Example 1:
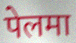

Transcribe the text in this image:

पेलमा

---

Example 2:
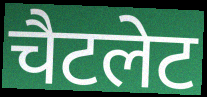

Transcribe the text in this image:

चैटलेट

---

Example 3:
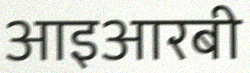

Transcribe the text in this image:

आइआरबी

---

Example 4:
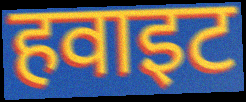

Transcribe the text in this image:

हवाइट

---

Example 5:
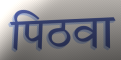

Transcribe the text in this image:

पिठवा